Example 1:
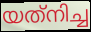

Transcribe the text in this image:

യത്‌നിച്ച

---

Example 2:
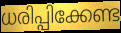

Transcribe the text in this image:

ധരിപ്പിക്കേണ്ട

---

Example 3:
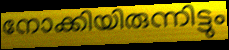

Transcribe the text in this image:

നോക്കിയിരുന്നിട്ടും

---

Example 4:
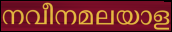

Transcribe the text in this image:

നവീനമലയാള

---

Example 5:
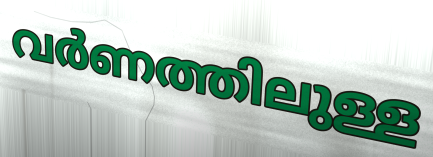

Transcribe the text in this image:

വർണത്തിലുള്ള